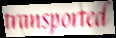
transported